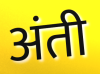
अंती